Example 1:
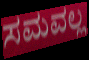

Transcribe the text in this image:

ಸಮವಲ್ಲ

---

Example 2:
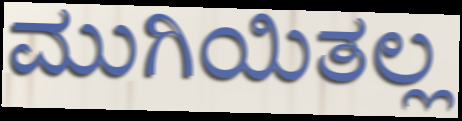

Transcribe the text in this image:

ಮುಗಿಯಿತಲ್ಲ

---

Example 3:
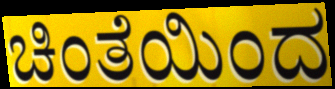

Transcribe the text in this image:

ಚಿಂತೆಯಿಂದ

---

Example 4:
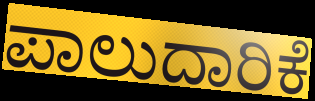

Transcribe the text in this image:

ಪಾಲುದಾರಿಕೆ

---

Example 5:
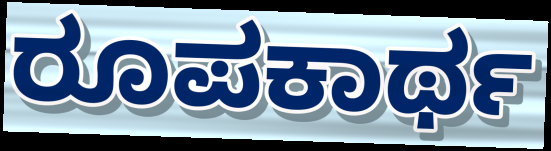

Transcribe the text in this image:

ರೂಪಕಾರ್ಥ